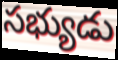
సభ్యుడు